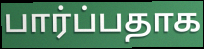
பார்ப்பதாக